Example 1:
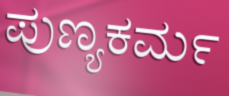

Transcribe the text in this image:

ಪುಣ್ಯಕರ್ಮ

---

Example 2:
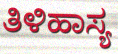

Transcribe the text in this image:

ತಿಳಿಹಾಸ್ಯ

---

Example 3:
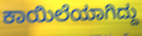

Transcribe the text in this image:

ಕಾಯಿಲೆಯಾಗಿದ್ದು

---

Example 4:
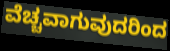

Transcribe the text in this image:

ವೆಚ್ಚವಾಗುವುದರಿಂದ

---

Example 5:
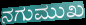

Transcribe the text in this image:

ನಗುಮುಖ